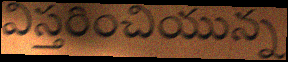
విస్తరించియున్న